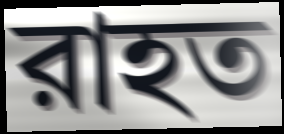
রাহত